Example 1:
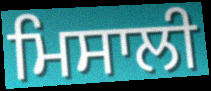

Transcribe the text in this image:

ਮਿਸਾਲੀ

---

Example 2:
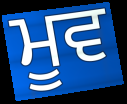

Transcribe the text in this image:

ਮੂਵ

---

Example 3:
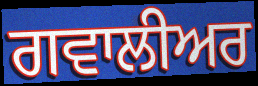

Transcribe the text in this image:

ਗਵਾਲੀਅਰ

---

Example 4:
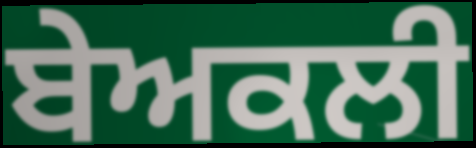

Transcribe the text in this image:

ਬੇਅਕਲੀ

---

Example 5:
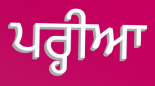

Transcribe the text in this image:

ਪਰ੍ਹੀਆ